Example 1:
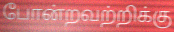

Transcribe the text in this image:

போன்றவற்றிக்கு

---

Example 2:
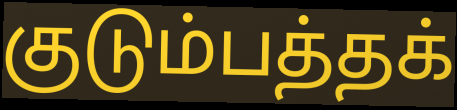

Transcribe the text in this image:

குடும்பத்தக்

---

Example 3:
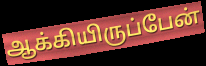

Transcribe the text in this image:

ஆக்கியிருப்பேன்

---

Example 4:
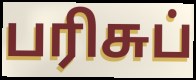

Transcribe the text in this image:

பரிசுப்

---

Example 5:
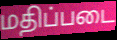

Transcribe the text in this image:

மதிப்படை